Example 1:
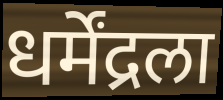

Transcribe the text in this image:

धर्मेंद्रला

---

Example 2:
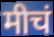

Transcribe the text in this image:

मीचं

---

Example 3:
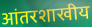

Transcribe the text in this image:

आंतरशाखीय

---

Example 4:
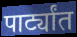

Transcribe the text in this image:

पार्ट्यांत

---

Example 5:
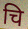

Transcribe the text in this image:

चि